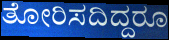
ತೋರಿಸದಿದ್ದರೂ